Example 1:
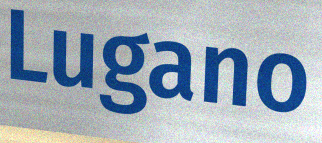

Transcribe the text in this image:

Lugano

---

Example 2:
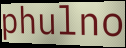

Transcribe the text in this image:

phulno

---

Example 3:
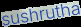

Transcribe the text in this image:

sushrutha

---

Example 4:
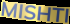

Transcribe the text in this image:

MISHTI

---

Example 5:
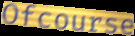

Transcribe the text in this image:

Ofcourse